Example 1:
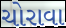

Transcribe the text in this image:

ચોરાવા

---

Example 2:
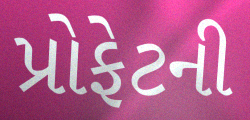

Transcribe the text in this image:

પ્રોફેટની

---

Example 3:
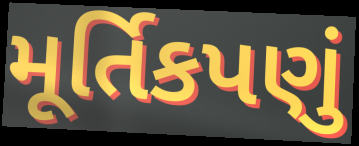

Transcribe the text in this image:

મૂર્તિકપણું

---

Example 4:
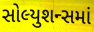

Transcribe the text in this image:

સોલ્યુશન્સમાં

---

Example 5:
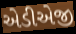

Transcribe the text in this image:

એડીએજી